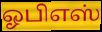
ஓபிஎஸ்